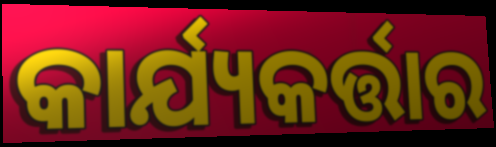
କାର୍ଯ୍ୟକର୍ତ୍ତାର